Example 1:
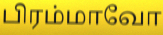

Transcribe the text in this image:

பிரம்மாவோ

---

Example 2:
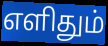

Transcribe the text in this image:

எளிதும்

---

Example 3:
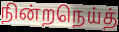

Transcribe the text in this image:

நின்றநெய்த்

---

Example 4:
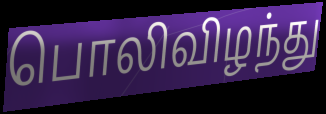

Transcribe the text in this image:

பொலிவிழந்து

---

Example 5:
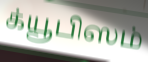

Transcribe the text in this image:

க்யூபிஸம்